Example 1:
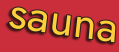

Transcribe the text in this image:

sauna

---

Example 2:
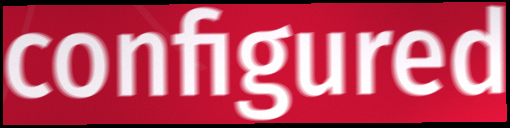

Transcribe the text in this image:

configured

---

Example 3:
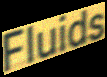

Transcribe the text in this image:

Fluids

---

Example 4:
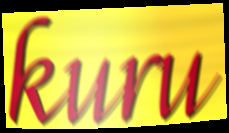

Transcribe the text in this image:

kuru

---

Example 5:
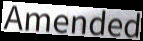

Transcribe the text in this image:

Amended